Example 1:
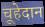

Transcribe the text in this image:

चूहेदान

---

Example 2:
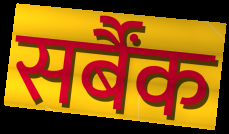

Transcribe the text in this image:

सर्बैंक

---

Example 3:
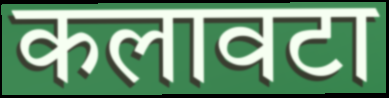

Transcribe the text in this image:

कलावटा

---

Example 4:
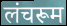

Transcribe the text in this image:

लंचरूम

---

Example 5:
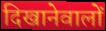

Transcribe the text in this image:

दिखानेवालों